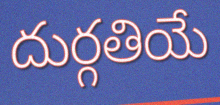
దుర్గతియే